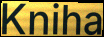
Kniha